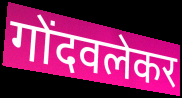
गोंदवलेकर